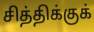
சித்திக்குக்